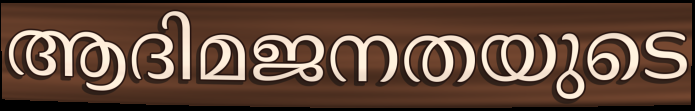
ആദിമജനതയുടെ